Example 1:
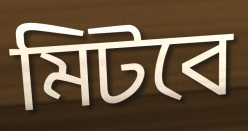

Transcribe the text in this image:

মিটবে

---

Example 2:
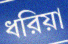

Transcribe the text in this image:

ধরিয়া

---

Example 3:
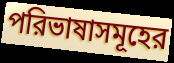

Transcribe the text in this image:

পরিভাষাসমূহের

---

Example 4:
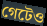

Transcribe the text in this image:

গেটেও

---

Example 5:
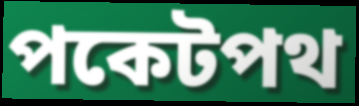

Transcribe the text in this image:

পকেটপথ